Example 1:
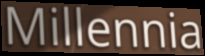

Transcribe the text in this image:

Millennia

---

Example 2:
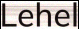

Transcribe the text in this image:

Lehel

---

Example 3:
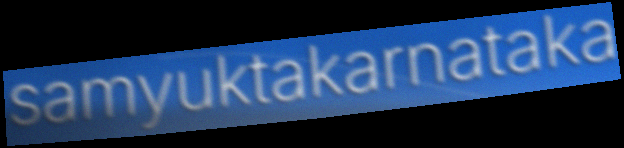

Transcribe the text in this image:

samyuktakarnataka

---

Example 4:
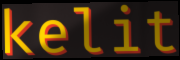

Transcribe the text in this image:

kelit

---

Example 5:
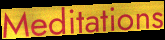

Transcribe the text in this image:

Meditations